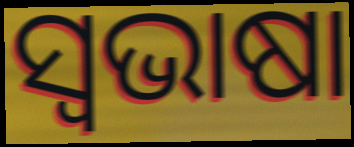
ସ୍ୱଭାଷା